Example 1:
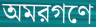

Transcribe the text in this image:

অমরগণে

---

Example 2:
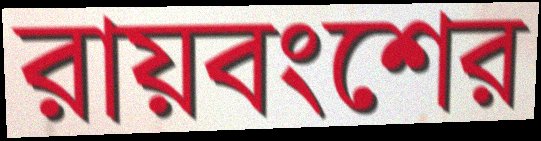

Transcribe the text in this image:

রায়বংশের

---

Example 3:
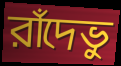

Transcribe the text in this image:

রাঁদেভু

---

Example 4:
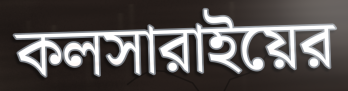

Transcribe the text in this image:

কলসারাইয়ের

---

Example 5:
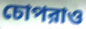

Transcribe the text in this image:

চোপরাও